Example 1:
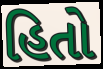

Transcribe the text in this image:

હિતો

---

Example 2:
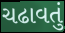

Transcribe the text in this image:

ચઢાવતું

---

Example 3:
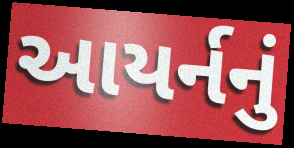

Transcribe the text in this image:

આયર્નનું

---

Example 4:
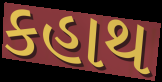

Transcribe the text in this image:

કહાથ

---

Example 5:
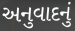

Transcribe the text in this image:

અનુવાદનું